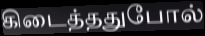
கிடைத்ததுபோல்